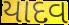
યાદવ